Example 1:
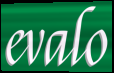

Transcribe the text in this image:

evalo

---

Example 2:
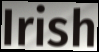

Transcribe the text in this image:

Irish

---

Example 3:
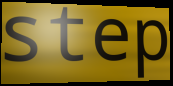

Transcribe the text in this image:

step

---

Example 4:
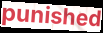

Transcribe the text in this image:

punished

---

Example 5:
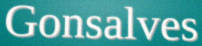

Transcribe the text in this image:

Gonsalves